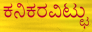
ಕನಿಕರವಿಟ್ಟು